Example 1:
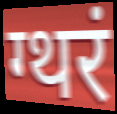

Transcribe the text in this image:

ग्थरं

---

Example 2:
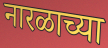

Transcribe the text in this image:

नारळाच्या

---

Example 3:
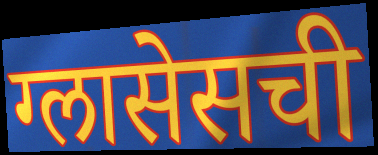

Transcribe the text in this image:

ग्लासेसची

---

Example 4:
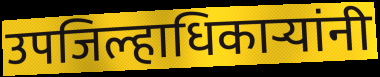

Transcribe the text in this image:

उपजिल्हाधिकाऱ्यांनी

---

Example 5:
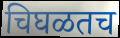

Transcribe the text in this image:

चिघळतच